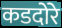
कडदोरे